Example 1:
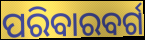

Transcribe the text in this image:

ପରିବାରବର୍ଗ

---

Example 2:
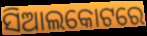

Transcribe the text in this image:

ସିଆଲକୋଟରେ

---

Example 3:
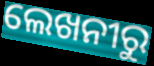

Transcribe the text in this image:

ଲେଖନୀରୁ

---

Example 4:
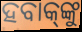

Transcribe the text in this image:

ହବାକ୍‌ଙ୍କୁ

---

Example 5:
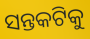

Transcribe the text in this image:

ସନ୍ତକଟିକୁ